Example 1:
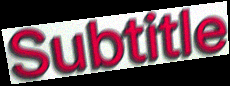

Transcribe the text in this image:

Subtitle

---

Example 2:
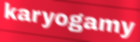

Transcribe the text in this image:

karyogamy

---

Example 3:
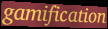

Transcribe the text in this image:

gamification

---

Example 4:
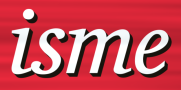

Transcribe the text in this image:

isme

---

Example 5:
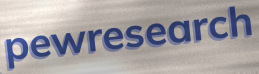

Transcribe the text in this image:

pewresearch